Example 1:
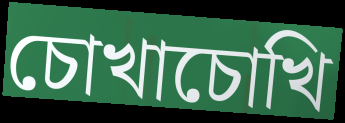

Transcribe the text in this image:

চোখাচোখি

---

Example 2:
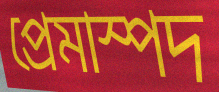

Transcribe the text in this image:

প্রেমাস্পদ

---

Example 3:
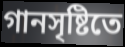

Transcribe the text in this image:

গানসৃষ্টিতে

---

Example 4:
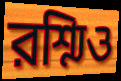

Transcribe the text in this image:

রশ্মিও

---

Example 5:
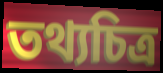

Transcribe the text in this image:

তথ্যচিত্র